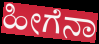
ಹೀಗೆನಾ